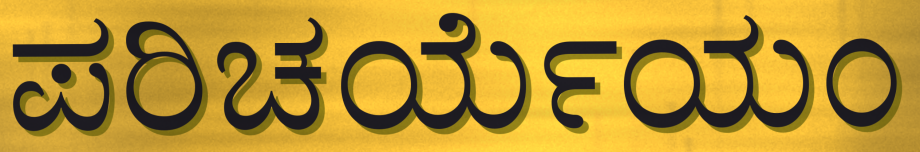
ಪರಿಚರ್ಯೆಯಂ